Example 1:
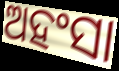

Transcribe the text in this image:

ଅହଂସା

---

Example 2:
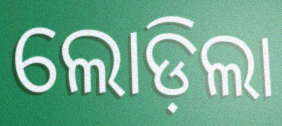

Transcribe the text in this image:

ଲୋଡ଼ିଲା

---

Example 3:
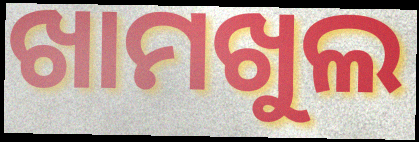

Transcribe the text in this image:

ଖାମଖୁଲ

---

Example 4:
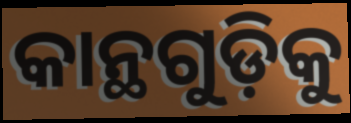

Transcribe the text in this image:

କାନ୍ଥଗୁଡ଼ିକୁ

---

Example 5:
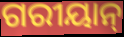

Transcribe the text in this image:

ଗରୀୟାନ୍